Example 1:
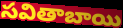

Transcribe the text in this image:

సవితాబాయి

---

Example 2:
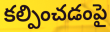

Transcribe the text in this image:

కల్పించడంపై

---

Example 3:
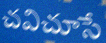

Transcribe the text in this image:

చవిచూసే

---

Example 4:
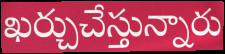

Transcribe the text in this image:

ఖర్చుచేస్తున్నారు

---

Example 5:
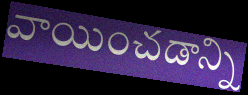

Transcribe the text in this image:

వాయించడాన్ని